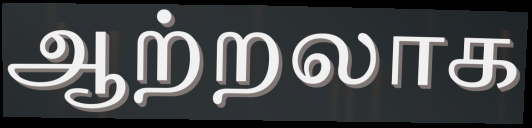
ஆற்றலாக